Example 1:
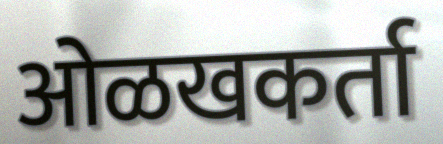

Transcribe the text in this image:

ओळखकर्ता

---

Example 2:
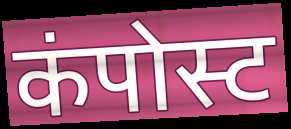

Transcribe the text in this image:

कंपोस्ट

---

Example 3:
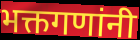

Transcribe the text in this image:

भक्तगणांनी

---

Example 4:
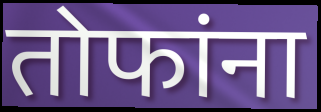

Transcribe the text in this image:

तोफांना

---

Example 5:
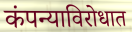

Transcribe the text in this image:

कंपन्याविरोधात